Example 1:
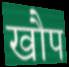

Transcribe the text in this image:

खौप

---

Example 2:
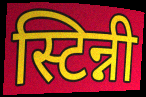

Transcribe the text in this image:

स्टिन्नी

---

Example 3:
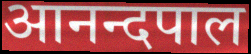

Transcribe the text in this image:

आनन्दपाल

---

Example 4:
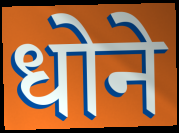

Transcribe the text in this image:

धोने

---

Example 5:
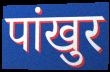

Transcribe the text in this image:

पांखुर